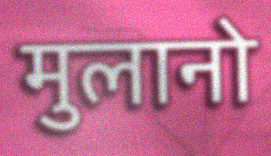
मुलानो